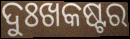
ଦୁଃଖକଷ୍ଟର